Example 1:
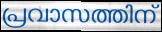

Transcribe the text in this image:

പ്രവാസത്തിന്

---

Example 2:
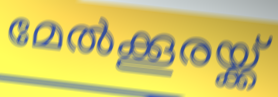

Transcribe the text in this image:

മേൽക്കൂരയ്ക്ക്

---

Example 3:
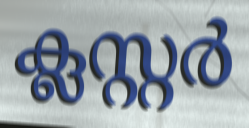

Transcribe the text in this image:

ക്ലസ്റ്റർ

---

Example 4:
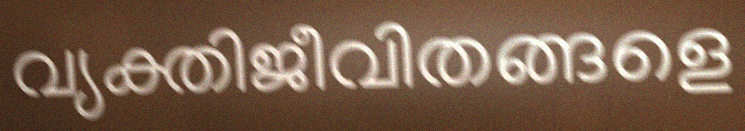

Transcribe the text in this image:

വ്യക്തിജീവിതങ്ങളെ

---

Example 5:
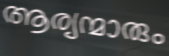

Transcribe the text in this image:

ആര്യന്മാരും